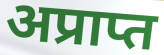
अप्राप्त